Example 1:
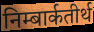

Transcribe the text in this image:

निम्बार्कतीर्थ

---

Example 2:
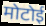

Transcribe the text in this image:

मोटोई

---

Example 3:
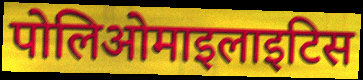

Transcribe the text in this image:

पोलिओमाइलाइटिस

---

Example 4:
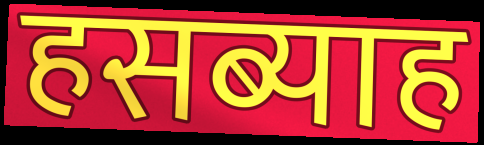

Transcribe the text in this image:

हसब्याह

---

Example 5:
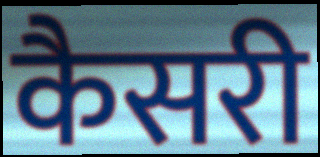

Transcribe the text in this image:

कैसरी